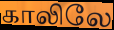
காலிலே